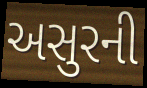
અસુરની